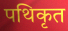
पथिकृत